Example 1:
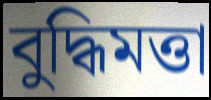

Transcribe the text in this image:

বুদ্ধিমত্তা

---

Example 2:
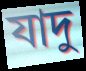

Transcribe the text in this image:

যাদু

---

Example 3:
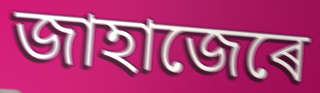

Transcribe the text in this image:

জাহাজেৰে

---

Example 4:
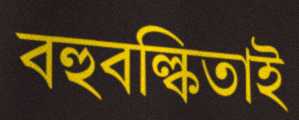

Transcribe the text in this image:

বহুবল্কিতাই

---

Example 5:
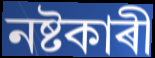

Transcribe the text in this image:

নষ্টকাৰী